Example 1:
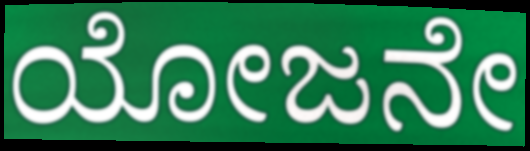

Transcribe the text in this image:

ಯೋಜನೇ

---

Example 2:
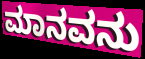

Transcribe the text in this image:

ಮಾನವನು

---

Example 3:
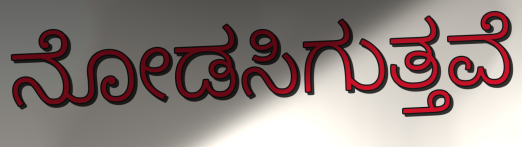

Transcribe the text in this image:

ನೋಡಸಿಗುತ್ತವೆ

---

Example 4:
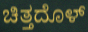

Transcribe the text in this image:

ಚಿತ್ತದೊಳ್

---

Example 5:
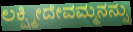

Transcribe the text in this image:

ಲಕ್ಷ್ಮೀದೇವಮ್ಮನನ್ನು